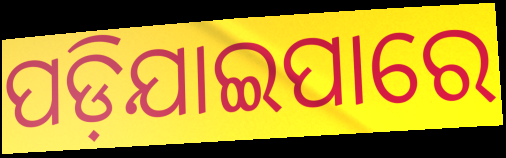
ପଡ଼ିଯାଇପାରେ